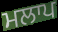
ਮਲਾਪ